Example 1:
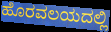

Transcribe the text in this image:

ಹೊರವಲಯದಲ್ಲಿ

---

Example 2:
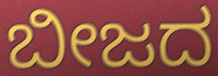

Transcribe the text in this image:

ಬೀಜದ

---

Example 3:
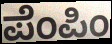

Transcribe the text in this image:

ಪೆಂಪಿಂ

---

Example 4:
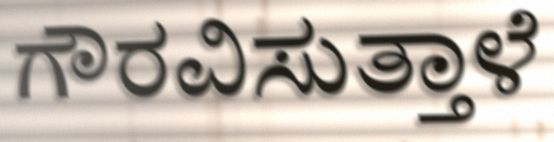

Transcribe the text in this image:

ಗೌರವಿಸುತ್ತಾಳೆ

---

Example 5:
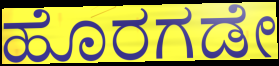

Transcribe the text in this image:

ಹೊರಗಡೇ